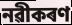
নৱীকৰণ